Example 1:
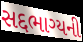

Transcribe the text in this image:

સદ્દભાગ્યની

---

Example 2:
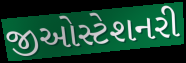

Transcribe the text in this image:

જીઓસ્ટેશનરી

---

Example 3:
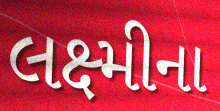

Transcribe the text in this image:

લક્ષ્મીના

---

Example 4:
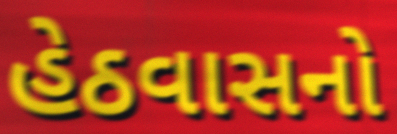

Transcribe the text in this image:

હેઠવાસનો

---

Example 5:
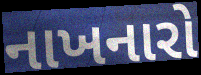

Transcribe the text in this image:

નાખનારો